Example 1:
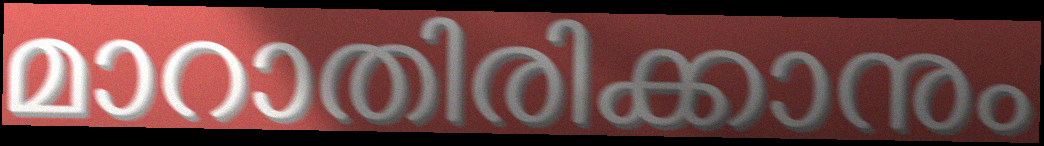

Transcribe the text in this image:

മാറാതിരിക്കാനും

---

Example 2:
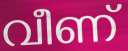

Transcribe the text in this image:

വീണ്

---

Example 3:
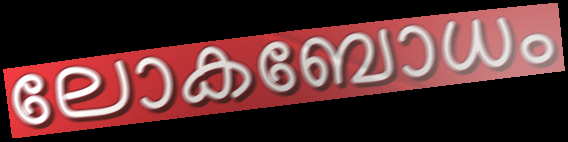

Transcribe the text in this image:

ലോകബോധം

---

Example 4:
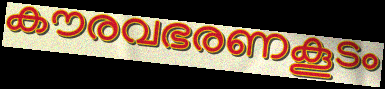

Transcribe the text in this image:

കൗരവഭരണകൂടം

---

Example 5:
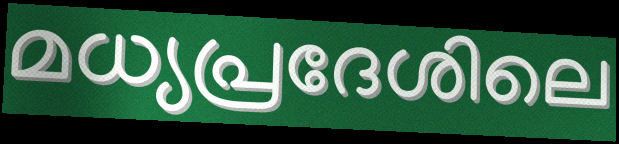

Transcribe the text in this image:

മധ്യപ്രദേശിലെ